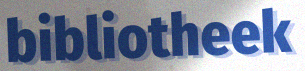
bibliotheek